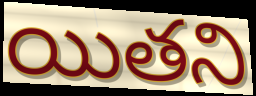
యితని